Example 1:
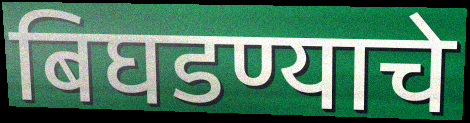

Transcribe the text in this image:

बिघडण्याचे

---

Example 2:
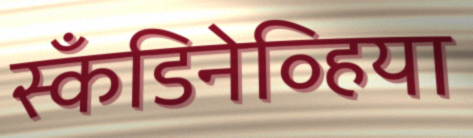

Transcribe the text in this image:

स्कँडिनेव्हिया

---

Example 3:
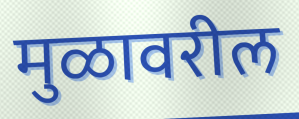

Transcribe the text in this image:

मुळावरील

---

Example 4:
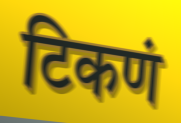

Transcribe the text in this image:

टिकणं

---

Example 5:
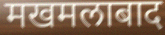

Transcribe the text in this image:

मखमलाबाद